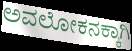
ಅವಲೋಕನಕ್ಕಾಗಿ